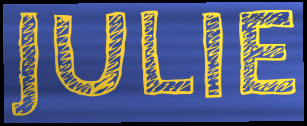
JULIE